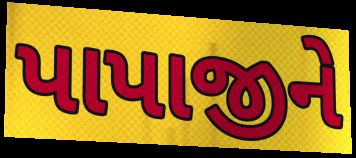
પાપાજીને